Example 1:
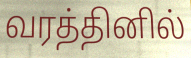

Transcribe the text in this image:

வரத்தினில்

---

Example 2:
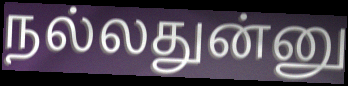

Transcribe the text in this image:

நல்லதுன்னு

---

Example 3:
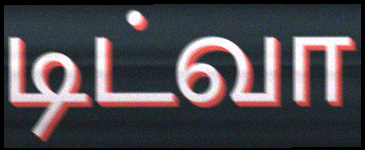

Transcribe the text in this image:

டிட்வா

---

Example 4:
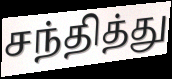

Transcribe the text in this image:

சந்தித்து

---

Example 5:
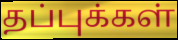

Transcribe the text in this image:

தப்புக்கள்